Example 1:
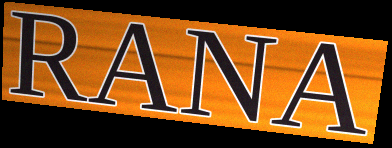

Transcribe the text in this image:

RANA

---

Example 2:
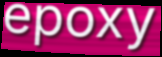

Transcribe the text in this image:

epoxy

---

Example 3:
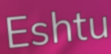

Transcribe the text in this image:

Eshtu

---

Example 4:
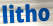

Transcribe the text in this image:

litho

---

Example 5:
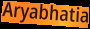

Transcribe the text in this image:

Aryabhatia